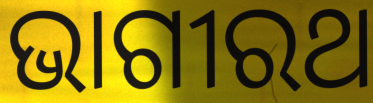
ଭାଗୀରଥ